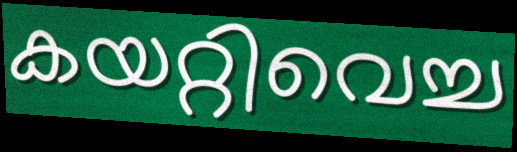
കയറ്റിവെച്ച